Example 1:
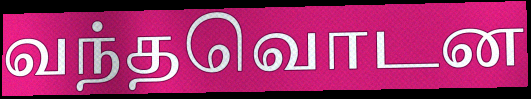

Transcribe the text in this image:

வந்தவொடன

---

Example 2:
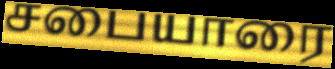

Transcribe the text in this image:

சபையாரை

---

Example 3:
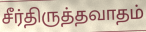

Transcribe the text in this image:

சீர்திருத்தவாதம்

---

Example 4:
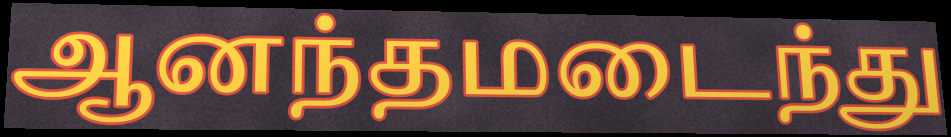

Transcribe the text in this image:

ஆனந்தமடைந்து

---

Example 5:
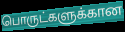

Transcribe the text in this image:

பொருட்களுக்கான